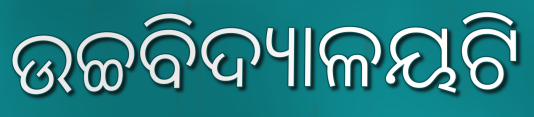
ଉଚ୍ଚବିଦ୍ୟାଳୟଟି